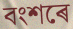
বংশৰে